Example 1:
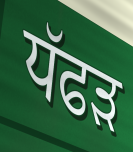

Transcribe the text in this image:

ਧੱਫੜ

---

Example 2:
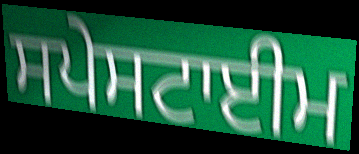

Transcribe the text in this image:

ਸਪੇਸਟਾਈਮ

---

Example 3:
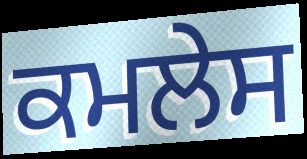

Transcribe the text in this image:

ਕਮਲੇਸ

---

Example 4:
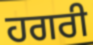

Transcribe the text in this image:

ਹਗਰੀ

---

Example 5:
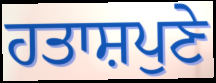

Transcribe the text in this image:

ਹਤਾਸ਼ਪੁਣੇ